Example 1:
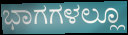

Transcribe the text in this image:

ಭಾಗಗಳಲ್ಲೂ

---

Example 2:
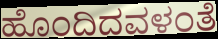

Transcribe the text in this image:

ಹೊಂದಿದವಳಂತೆ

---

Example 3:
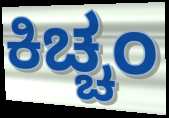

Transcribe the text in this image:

ಕಿಚ್ಚಂ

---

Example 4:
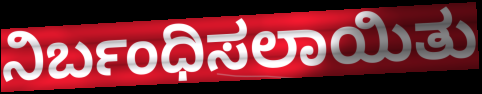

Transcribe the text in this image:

ನಿರ್ಬಂಧಿಸಲಾಯಿತು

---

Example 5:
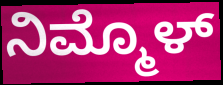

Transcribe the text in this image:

ನಿಮ್ಮೊಳ್